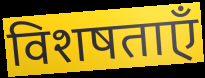
विशषताएँ